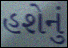
હશેનું